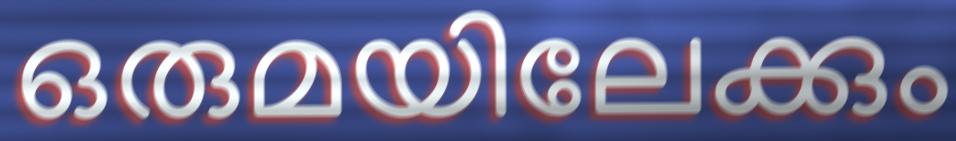
ഒരുമയിലേക്കും